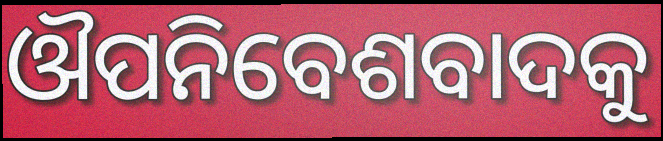
ଔପନିବେଶବାଦକୁ